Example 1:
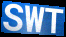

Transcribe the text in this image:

SWT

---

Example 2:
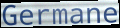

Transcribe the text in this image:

Germane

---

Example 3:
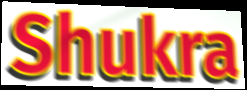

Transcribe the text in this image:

Shukra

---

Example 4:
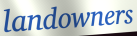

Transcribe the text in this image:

landowners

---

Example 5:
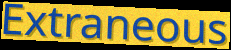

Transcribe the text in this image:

Extraneous